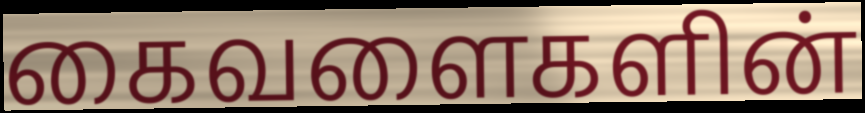
கைவளைகளின்